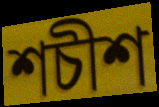
শচীশ